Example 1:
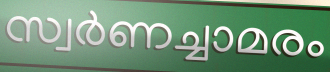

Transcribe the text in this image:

സ്വർണച്ചാമരം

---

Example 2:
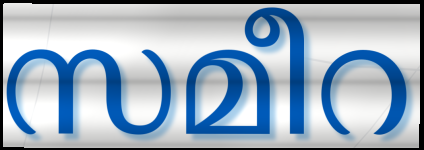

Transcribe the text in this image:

സമീറ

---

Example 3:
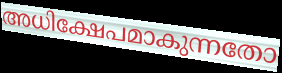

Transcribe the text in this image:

അധിക്ഷേപമാകുന്നതോ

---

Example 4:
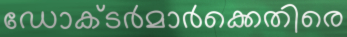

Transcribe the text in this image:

ഡോക്ടർമാർക്കെതിരെ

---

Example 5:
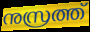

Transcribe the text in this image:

നുസ്രത്ത്